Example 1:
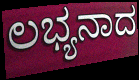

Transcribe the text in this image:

ಲಭ್ಯನಾದ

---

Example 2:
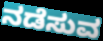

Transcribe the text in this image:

ನಡೆಸುವ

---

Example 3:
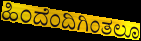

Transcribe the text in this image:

ಹಿಂದೆಂದಿಗಿಂತಲೂ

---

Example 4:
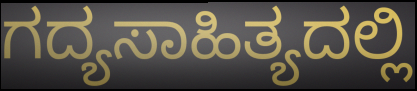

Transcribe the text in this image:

ಗದ್ಯಸಾಹಿತ್ಯದಲ್ಲಿ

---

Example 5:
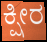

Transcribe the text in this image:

ಕ್ಷೀರ